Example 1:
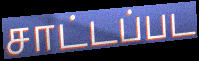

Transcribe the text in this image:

சாட்டப்பட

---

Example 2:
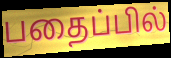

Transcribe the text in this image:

பதைப்பில்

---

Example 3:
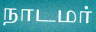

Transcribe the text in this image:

நாடமர்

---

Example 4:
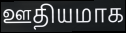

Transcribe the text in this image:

ஊதியமாக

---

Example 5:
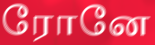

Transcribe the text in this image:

ரோனே